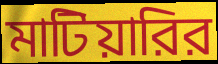
মাটিয়ারির